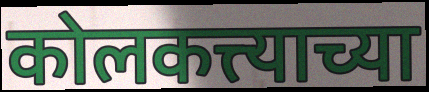
कोलकत्त्याच्या